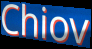
Chiov